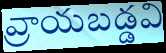
వ్రాయబడ్డవి